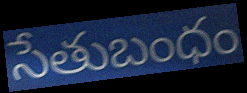
సేతుబంధం